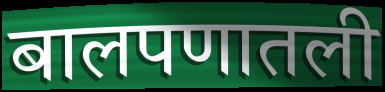
बालपणातली